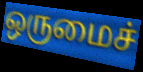
ஒருமைச்